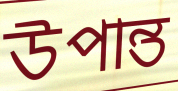
উপান্ত